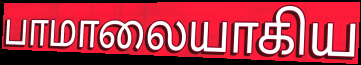
பாமாலையாகிய